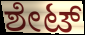
ಶೇಟ್